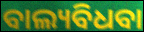
ବାଲ୍ୟବିଧବା